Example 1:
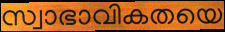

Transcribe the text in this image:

സ്വാഭാവികതയെ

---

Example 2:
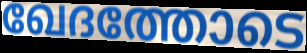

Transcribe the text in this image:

ഖേദത്തോടെ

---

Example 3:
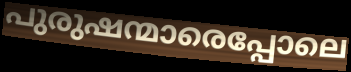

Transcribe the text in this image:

പുരുഷന്മാരെപ്പോലെ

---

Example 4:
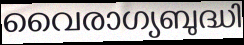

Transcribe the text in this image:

വൈരാഗ്യബുദ്ധി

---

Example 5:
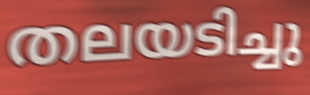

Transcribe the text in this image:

തലയടിച്ചു